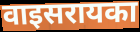
वाइसरायका